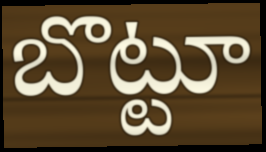
బొట్టూ